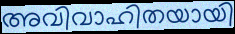
അവിവാഹിതയായി